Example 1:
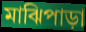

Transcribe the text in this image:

মাঝিপাড়া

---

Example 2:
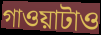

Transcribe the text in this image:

গাওয়াটাও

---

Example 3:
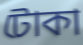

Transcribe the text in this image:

টোকা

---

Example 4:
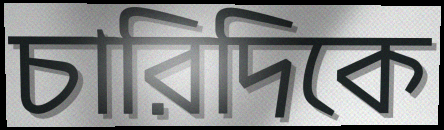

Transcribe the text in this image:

চারিদিকে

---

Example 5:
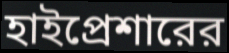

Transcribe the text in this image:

হাইপ্রেশারের